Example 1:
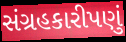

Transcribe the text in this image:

સંગ્રહકારીપણું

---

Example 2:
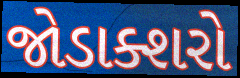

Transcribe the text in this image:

જોડાક્શરો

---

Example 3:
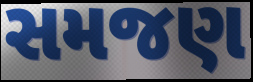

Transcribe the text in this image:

સમજણ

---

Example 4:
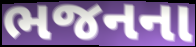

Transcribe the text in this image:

ભજનના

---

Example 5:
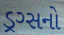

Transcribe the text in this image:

ડ્રગ્સનો